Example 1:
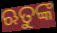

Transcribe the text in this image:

ଋତୁଙ୍କ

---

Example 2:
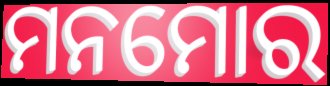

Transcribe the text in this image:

ମନମୋର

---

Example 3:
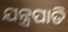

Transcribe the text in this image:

ଯନ୍ତ୍ରପାତି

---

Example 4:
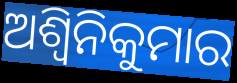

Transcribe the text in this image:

ଅଶ୍ୱିନିକୁମାର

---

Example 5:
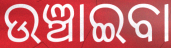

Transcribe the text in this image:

ଉଞ୍ଚାଇବା